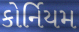
કોર્નિયમ